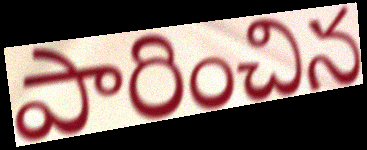
పారించిన